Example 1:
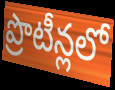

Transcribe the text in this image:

ప్రొటీన్లలో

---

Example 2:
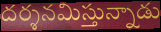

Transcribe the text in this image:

దర్శనమిస్తున్నాడు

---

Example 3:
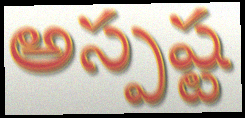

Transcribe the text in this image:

అస్పష్ట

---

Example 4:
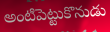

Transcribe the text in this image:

అంటిపెట్టుకొనుడు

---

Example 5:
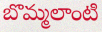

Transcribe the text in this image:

బొమ్మలాంటి